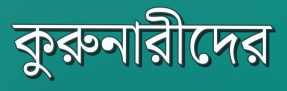
কুরুনারীদের